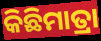
କିଛିମାତ୍ରା